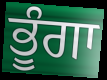
ਭੂੰਗਾ